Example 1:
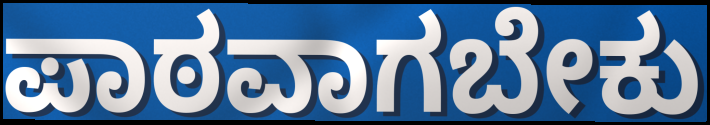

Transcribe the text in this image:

ಪಾಠವಾಗಬೇಕು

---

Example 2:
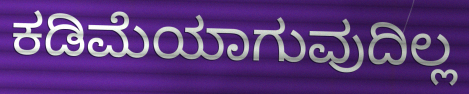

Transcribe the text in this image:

ಕಡಿಮೆಯಾಗುವುದಿಲ್ಲ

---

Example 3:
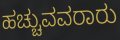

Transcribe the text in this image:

ಹಚ್ಚುವವರಾರು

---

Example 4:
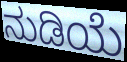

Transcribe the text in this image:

ನುಡಿಯೆ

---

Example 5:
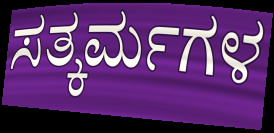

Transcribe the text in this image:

ಸತ್ಕರ್ಮಗಳ